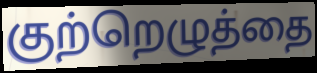
குற்றெழுத்தை